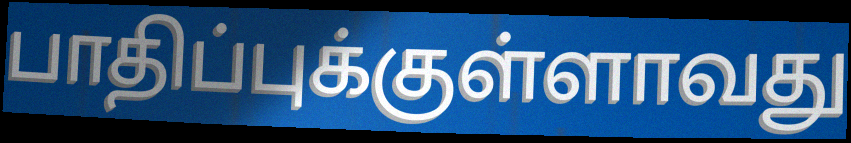
பாதிப்புக்குள்ளாவது